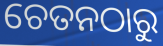
ଚେତନଠାରୁ